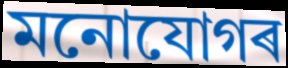
মনোযোগৰ